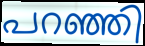
പറഞ്ഞി